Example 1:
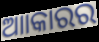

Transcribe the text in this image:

ଆାକାରର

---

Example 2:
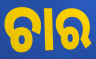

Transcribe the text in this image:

ଚାର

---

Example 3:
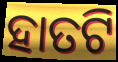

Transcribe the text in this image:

ହାତଟି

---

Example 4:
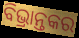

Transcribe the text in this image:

ବିଭ୍ରାନ୍ତକର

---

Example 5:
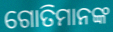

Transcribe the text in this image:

ଗୋତିମାନଙ୍କ